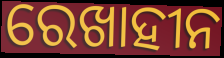
ରେଖାହୀନ